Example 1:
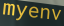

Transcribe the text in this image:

myenv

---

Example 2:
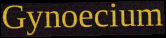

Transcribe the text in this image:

Gynoecium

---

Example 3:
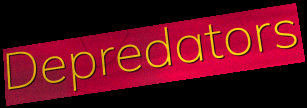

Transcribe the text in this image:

Depredators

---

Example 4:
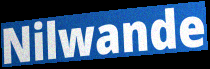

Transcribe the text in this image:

Nilwande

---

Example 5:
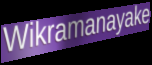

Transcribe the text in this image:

Wikramanayake